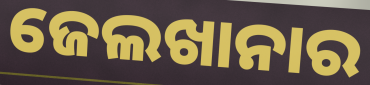
ଜେଲଖାନାର